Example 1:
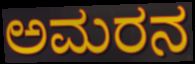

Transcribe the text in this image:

ಅಮರನ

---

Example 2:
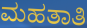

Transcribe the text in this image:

ಮಹತಾತಿ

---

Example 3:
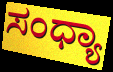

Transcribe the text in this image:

ಸಂಧ್ಯಾ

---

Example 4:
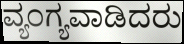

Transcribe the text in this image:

ವ್ಯಂಗ್ಯವಾಡಿದರು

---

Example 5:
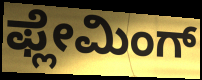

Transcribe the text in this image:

ಫ್ಲೇಮಿಂಗ್